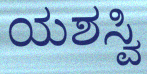
ಯಶಸ್ವಿ